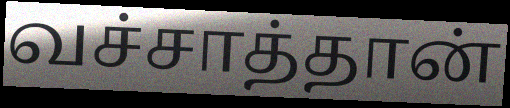
வச்சாத்தான்